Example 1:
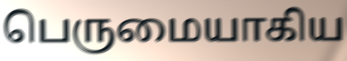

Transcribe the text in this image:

பெருமையாகிய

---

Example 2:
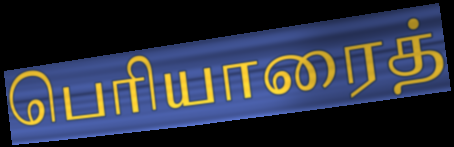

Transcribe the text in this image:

பெரியாரைத்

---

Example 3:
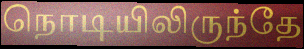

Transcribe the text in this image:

நொடியிலிருந்தே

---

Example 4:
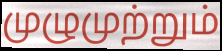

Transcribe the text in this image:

முழுமுற்றும்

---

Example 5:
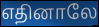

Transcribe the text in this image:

எதினாலே